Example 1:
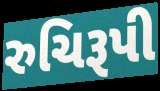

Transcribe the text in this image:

રુચિરૂપી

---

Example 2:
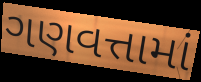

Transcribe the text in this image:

ગણવત્તામાં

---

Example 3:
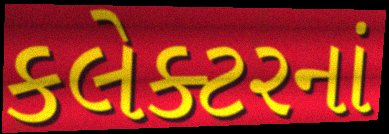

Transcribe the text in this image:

કલેક્ટરનાં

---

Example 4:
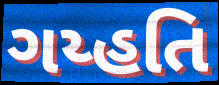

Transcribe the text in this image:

ગય્હતિ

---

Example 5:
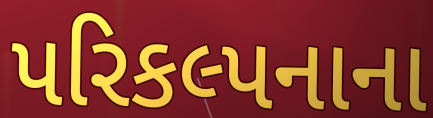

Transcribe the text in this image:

પરિકલ્પનાના